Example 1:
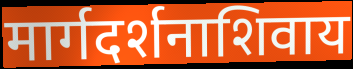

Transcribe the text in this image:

मार्गदर्शनाशिवाय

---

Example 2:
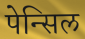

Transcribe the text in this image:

पेन्सिल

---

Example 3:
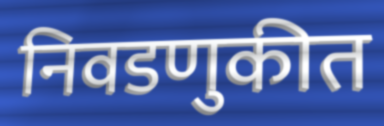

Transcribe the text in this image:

निवडणुकीत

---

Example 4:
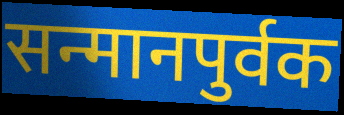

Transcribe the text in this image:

सन्मानपुर्वक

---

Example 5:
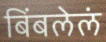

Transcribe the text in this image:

बिंबलेलं